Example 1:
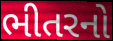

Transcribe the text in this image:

ભીતરનો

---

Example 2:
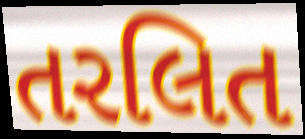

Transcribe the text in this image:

તરલિત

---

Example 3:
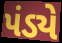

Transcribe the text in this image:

પંડ્યે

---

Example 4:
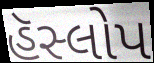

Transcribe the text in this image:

હૅસ્લોપ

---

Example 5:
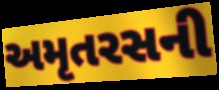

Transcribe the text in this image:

અમૃતરસની